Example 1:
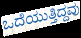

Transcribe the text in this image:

ಒದೆಯುತ್ತಿದ್ದವು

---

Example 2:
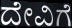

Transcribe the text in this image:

ದೇವಿಗೆ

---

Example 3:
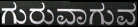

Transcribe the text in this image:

ಗುರುವಾಗುವ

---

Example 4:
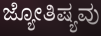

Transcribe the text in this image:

ಜ್ಯೋತಿಷ್ಯವು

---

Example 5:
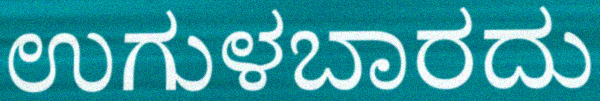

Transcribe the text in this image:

ಉಗುಳಬಾರದು